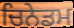
ਚਿਨੇਡਮ